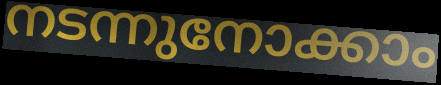
നടന്നുനോക്കാം